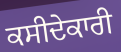
ਕਸੀਦੇਕਾਰੀ